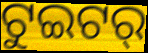
ଟୁଇଟର୍